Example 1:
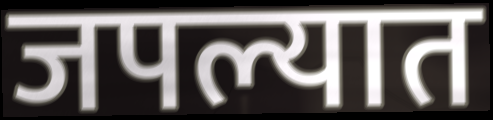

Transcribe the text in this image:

जपल्यात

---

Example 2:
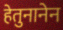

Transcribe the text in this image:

हेतुनानेन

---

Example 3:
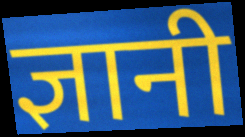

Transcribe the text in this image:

ज्ञानी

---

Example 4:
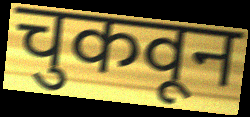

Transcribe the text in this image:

चुकवून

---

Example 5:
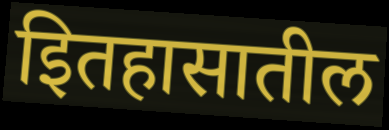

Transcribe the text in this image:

इितहासातील